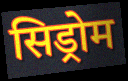
सिड्रोम